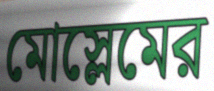
মোস্লেমের